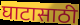
घाटासाठी